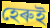
হেৰুই